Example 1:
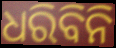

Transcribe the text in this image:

ଧରିବିନି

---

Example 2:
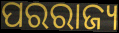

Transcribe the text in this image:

ପରରାଜ୍ୟ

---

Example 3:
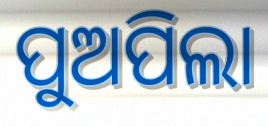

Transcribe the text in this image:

ପୁଅପିଲା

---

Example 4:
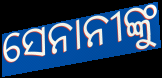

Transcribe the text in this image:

ସେନାନୀଙ୍କୁ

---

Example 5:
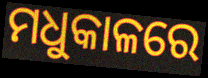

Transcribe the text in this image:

ମଧୁକାଳରେ